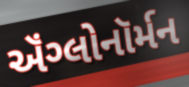
ઍંગ્લોનૉર્મન